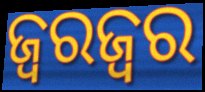
ଜ୍ୱରଜ୍ୱର